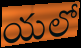
యలో